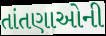
તાંતણાઓની